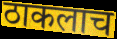
ठाकलाच